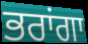
ਭਰਾਂਗਾ